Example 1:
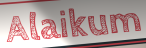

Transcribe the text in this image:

Alaikum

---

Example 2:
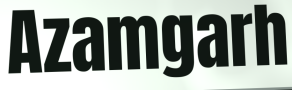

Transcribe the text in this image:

Azamgarh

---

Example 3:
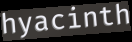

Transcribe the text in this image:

hyacinth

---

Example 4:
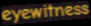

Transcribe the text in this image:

eyewitness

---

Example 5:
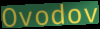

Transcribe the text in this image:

Ovodov